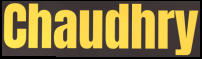
Chaudhry